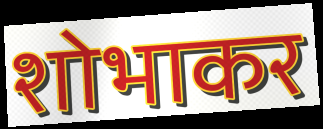
शोभाकर